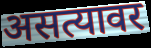
असत्यावर